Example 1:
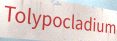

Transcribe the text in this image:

Tolypocladium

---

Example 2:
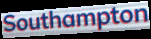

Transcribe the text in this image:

Southampton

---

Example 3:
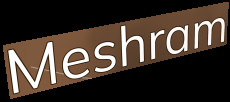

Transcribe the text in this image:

Meshram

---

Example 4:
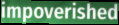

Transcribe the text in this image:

impoverished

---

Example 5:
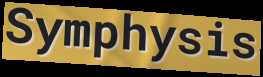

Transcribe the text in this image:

Symphysis